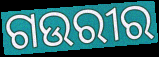
ଗଉରୀର